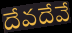
దేవదేవే